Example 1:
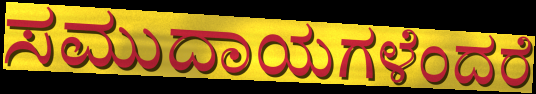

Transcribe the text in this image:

ಸಮುದಾಯಗಳೆಂದರೆ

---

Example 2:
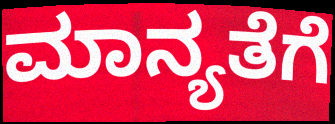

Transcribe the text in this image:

ಮಾನ್ಯತೆಗೆ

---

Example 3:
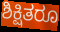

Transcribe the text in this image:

ಶಿಕ್ಷಿತರೂ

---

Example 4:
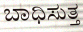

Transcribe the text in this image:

ಬಾಧಿಸುತ್ತ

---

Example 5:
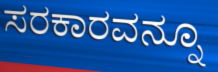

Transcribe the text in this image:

ಸರಕಾರವನ್ನೂ